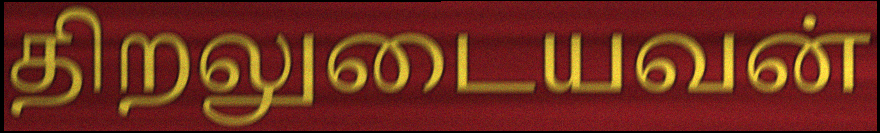
திறலுடையவன்